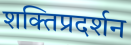
शक्तिप्रदर्शन